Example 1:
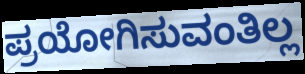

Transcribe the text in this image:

ಪ್ರಯೋಗಿಸುವಂತಿಲ್ಲ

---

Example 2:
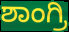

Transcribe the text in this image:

ಶಾಂಗ್ರಿ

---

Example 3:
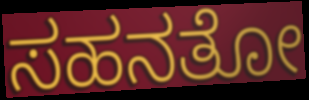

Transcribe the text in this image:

ಸಹನತೋ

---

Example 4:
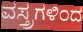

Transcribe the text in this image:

ವಸ್ತ್ರಗಳಿಂದ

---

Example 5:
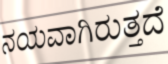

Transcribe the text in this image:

ನಯವಾಗಿರುತ್ತದೆ